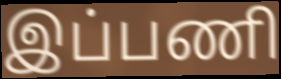
இப்பணி